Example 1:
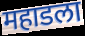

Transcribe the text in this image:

महाडला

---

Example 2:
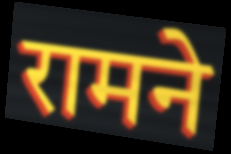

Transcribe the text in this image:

रामने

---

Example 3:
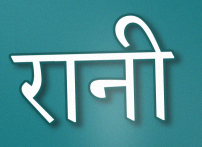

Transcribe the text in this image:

रानी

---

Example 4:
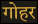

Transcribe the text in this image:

गोहर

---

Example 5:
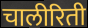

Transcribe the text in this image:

चालीरिती